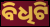
ବିଧିଟି